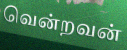
வென்றவன்